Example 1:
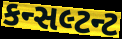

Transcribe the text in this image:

કન્સલ્ટન્ટ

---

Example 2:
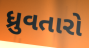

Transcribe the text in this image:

ધ્રુવતારો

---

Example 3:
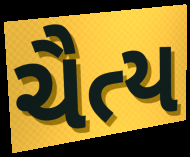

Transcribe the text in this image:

ચૈત્ય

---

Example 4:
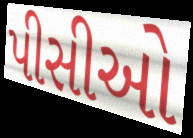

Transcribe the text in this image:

પીસીઓ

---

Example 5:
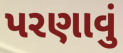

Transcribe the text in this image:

પરણાવું